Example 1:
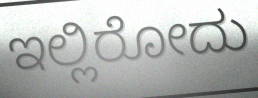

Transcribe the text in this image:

ಇಲ್ಲಿರೋದು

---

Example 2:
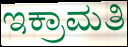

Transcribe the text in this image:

ಇಕ್ರಾಮತಿ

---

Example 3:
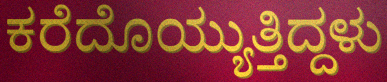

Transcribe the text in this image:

ಕರೆದೊಯ್ಯುತ್ತಿದ್ದಳು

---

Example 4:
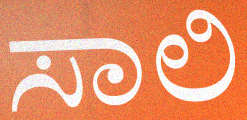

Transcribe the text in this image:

ಸಾಲಿ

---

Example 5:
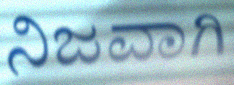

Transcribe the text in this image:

ನಿಜವಾಗಿ